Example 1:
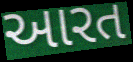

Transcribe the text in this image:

આરત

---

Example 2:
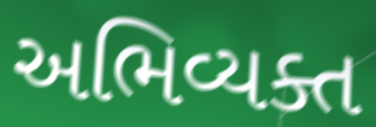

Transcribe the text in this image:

અભિવ્યક્ત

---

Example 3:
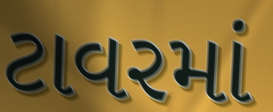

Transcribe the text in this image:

ટાવરમાં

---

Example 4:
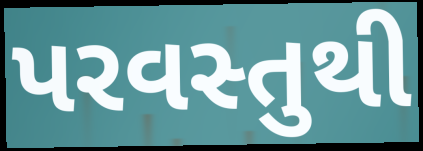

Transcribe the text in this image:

પરવસ્તુથી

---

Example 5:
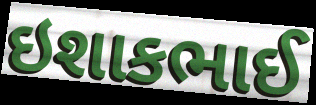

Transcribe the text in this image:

ઇશાકભાઈ